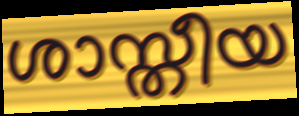
ശാസ്തീയ